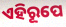
ଏହିରୂପେ